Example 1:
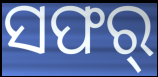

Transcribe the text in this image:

ସଫର୍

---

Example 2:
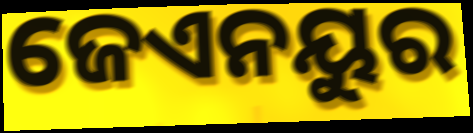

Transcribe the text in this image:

ଜେଏନୟୁର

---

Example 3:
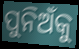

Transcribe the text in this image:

ପୁନିଅଁକୁ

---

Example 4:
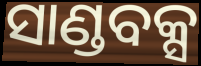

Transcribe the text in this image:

ସାଣ୍ଡବକ୍ସ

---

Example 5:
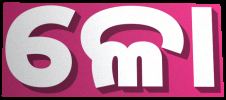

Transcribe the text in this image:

ଳୋ